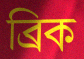
ব্রিক